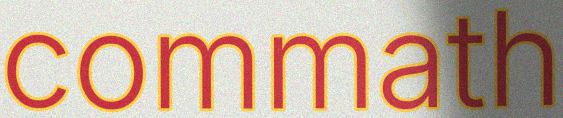
commath